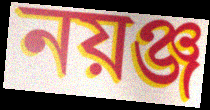
নয়ঞ্জ